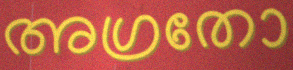
അഗ്രതോ